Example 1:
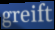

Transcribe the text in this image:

greift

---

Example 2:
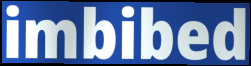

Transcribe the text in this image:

imbibed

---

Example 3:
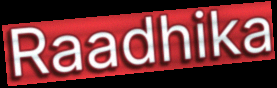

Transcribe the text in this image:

Raadhika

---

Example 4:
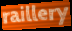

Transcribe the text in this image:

raillery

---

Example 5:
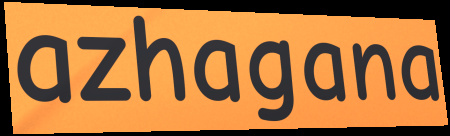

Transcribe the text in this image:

azhagana